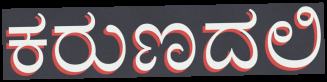
ಕರುಣದಲಿ